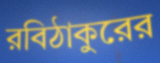
রবিঠাকুরের